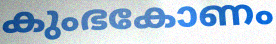
കുംഭകോണം